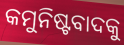
କମୁନିଷ୍ଟବାଦକୁ